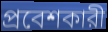
প্রবেশকারী